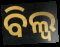
ବିଲ୍ଵ